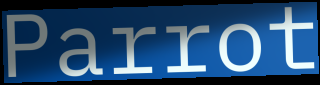
Parrot